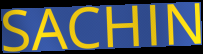
SACHIN